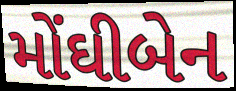
મોંઘીબેન